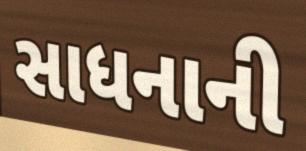
સાધનાની